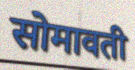
सोमावती